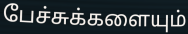
பேச்சுக்களையும்